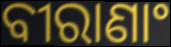
ବୀରାଣାଂ